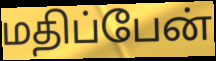
மதிப்பேன்